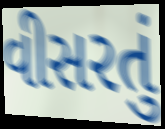
વીસરતું